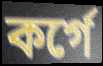
কর্গে